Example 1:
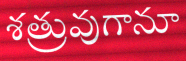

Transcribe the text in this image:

శత్రువుగానూ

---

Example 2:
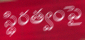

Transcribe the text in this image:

స్థిరత్వంపై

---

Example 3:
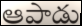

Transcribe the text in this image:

ఆపాడు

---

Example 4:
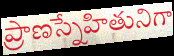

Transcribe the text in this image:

ప్రాణస్నేహితునిగా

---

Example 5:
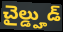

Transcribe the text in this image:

చైల్డ్హుడ్